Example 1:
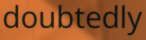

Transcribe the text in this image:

doubtedly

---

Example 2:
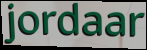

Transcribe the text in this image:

jordaar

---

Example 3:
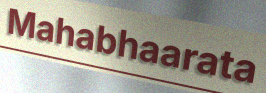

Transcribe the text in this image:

Mahabhaarata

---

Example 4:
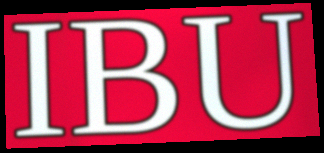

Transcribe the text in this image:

IBU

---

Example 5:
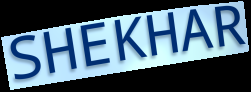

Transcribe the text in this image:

SHEKHAR